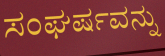
ಸಂಘರ್ಷವನ್ನು